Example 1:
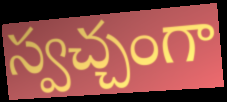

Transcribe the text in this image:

స్వచ్చంగా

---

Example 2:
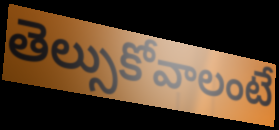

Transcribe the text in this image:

తెల్సుకోవాలంటే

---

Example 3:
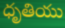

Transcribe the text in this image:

ధృతియు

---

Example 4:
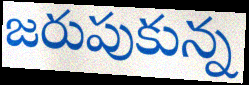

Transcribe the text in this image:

జరుపుకున్న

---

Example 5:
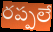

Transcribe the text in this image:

రప్పలే